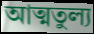
আত্মতুল্য